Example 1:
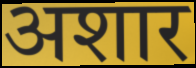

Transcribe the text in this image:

अशार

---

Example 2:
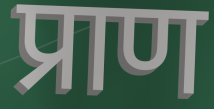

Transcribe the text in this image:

प्राण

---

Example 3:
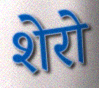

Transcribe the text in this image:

शेरो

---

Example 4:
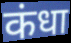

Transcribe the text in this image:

कंधा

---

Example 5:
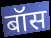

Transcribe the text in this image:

बॉस